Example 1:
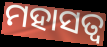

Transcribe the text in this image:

ମହାସତ୍ୱ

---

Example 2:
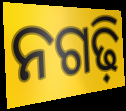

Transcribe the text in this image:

ନଗଢ଼ି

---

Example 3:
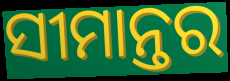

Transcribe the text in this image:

ସୀମାନ୍ତର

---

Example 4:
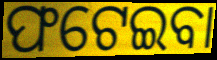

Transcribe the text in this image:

ଫଟେଇବା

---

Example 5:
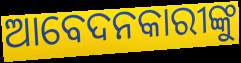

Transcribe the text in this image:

ଆବେଦନକାରୀଙ୍କୁ